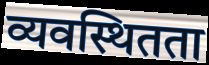
व्यवस्थितता